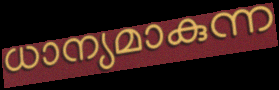
ധാന്യമാകുന്ന